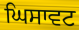
ਘਿਸਾਵਟ